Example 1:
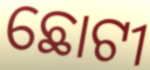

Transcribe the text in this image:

ଛୋଟୀ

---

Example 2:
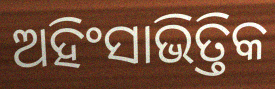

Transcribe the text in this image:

ଅହିଂସାଭିତ୍ତିକ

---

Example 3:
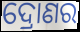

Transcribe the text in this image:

ଦ୍ରୋଣର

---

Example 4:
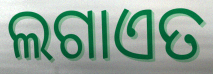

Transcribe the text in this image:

ଲଗାଏତ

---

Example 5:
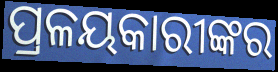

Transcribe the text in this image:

ପ୍ରଳୟକାରୀଙ୍କର